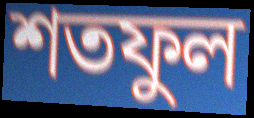
শতফুল